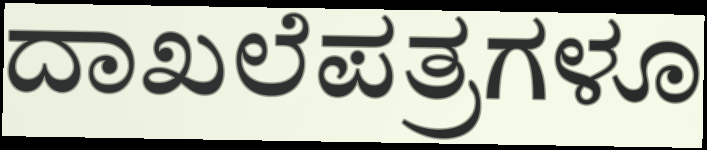
ದಾಖಲೆಪತ್ರಗಳೂ